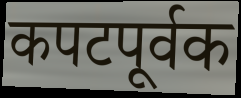
कपटपूर्वक